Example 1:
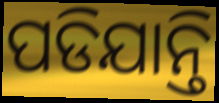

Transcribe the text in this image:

ପଡିଯାନ୍ତି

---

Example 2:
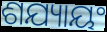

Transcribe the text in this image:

ଶଯ୍ୟାୟଂ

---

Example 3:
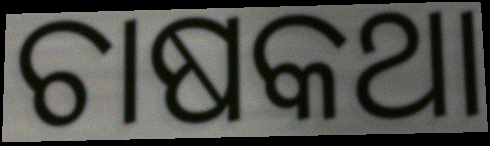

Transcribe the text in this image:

ଚାଷକଥା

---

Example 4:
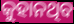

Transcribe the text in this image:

କୁହାନଥିବ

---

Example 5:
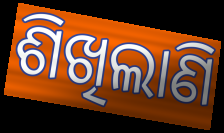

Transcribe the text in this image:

ଶିଖିଲାଣି